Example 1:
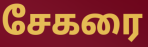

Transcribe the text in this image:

சேகரை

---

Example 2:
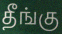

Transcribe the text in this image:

தீங்கு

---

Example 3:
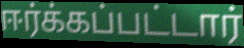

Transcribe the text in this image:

ஈர்க்கப்பட்டார்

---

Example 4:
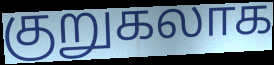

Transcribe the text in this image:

குறுகலாக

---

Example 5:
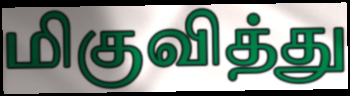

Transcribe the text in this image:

மிகுவித்து